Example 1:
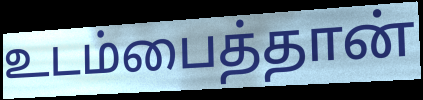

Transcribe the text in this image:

உடம்பைத்தான்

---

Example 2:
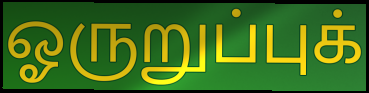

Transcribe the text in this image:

ஓருறுப்புக்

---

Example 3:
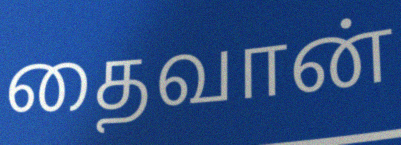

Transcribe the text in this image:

தைவான்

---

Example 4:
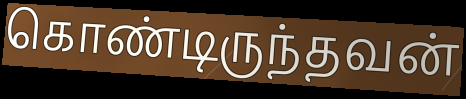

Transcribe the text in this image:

கொண்டிருந்தவன்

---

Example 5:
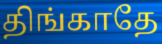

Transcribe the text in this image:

திங்காதே